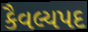
કૈવલ્યપદ